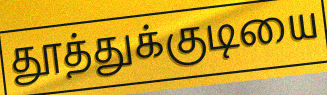
தூத்துக்குடியை